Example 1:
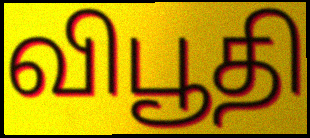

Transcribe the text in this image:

விபூதி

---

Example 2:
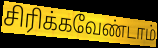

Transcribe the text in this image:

சிரிக்கவேண்டாம்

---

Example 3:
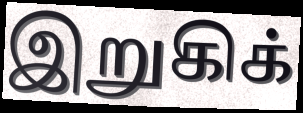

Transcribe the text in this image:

இறுகிக்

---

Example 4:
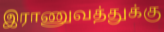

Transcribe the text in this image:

இராணுவத்துக்கு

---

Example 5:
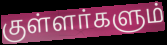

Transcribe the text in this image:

குள்ளர்களும்